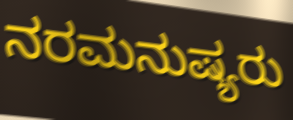
ನರಮನುಷ್ಯರು